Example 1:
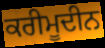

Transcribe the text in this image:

ਕਰੀਮੂਦੀਨ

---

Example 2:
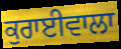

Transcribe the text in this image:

ਕੁਰਾਈਵਾਲਾ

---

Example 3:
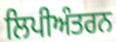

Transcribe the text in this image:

ਲਿਪੀਅੰਤਰਨ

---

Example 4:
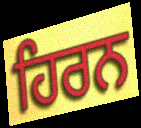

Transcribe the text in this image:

ਹਿਰਨ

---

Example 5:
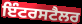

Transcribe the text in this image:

ਇੰਟਰਸਟੈਲਰ